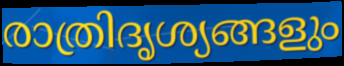
രാത്രിദൃശ്യങ്ങളും